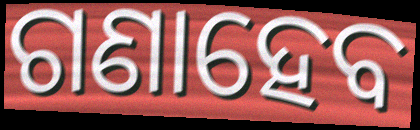
ଗଣାହେବ